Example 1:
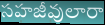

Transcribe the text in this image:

సహజీవులారా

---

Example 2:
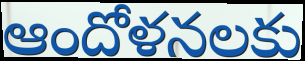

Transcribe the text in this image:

ఆందోళనలకు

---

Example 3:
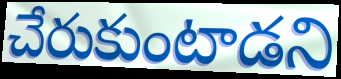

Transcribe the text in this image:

చేరుకుంటాడని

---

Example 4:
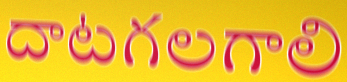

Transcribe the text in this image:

దాటగలగాలి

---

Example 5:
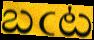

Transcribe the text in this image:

బఁట